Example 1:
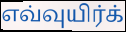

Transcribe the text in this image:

எவ்வுயிர்க்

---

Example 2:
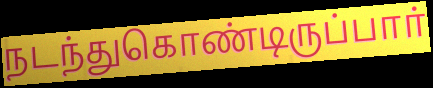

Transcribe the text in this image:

நடந்துகொண்டிருப்பார்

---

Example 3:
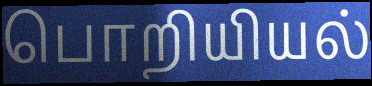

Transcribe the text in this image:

பொறியியல்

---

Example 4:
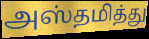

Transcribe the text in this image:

அஸ்தமித்து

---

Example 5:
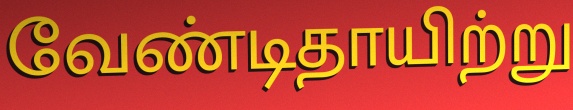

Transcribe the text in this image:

வேண்டிதாயிற்று